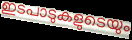
ഇടപാടുകളുടെയും